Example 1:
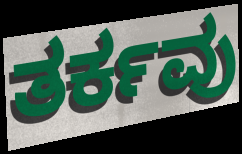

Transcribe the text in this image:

ತರ್ಕವು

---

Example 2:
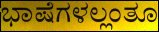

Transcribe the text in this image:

ಭಾಷೆಗಳಲ್ಲಂತೂ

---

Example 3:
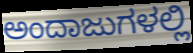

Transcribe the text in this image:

ಅಂದಾಜುಗಳಲ್ಲಿ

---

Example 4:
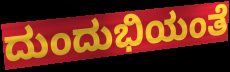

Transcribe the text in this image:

ದುಂದುಭಿಯಂತೆ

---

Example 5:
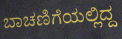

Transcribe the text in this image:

ಬಾಚಣಿಗೆಯಲ್ಲಿದ್ದ